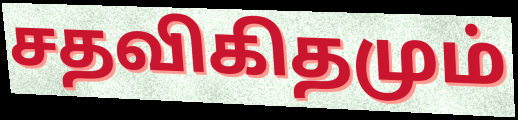
சதவிகிதமும்